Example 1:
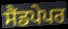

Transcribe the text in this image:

ਸੈਂਡਪੇਪਰ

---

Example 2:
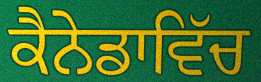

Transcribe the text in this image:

ਕੈਨੇਡਾਵਿੱਚ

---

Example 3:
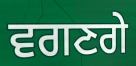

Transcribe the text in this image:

ਵਗਣਗੇ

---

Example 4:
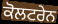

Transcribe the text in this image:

ਕੋਲਟਰੇਨ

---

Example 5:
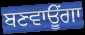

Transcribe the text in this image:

ਬਣਵਾਊਂਗਾ